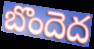
బొందెద